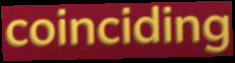
coinciding